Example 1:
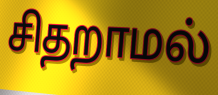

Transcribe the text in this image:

சிதறாமல்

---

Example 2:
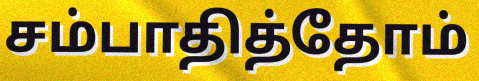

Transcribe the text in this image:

சம்பாதித்தோம்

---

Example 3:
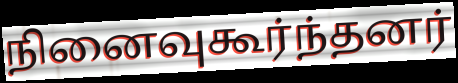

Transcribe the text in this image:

நினைவுகூர்ந்தனர்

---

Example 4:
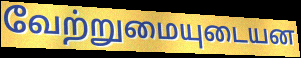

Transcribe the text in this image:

வேற்றுமையுடையன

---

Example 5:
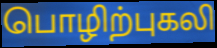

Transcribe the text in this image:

பொழிற்புகலி